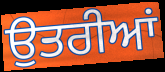
ਉਤਰੀਆਂ